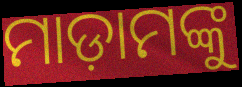
ମାଡ଼ାମଙ୍କୁ